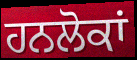
ਹਨਲੋਕਾਂ